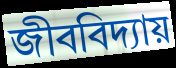
জীববিদ্যায়